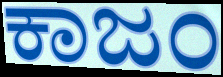
ಕಾಜಂ